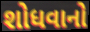
શોધવાનો